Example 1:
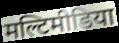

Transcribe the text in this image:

मल्टिमीडिया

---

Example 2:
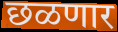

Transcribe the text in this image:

छळणार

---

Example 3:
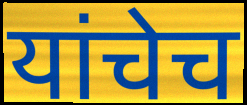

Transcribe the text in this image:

यांचेच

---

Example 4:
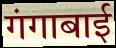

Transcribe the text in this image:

गंगाबाई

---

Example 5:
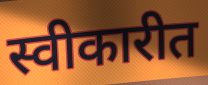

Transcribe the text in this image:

स्वीकारीत